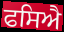
ਫਸਿਐ